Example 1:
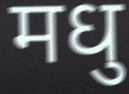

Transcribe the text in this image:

मधु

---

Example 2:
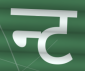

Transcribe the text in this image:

न्ट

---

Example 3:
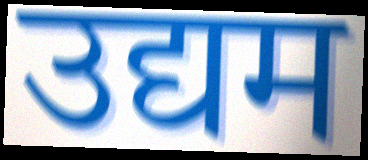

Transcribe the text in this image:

उद्यम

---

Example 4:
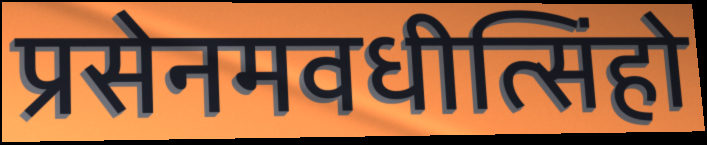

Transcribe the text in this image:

प्रसेनमवधीत्सिंहो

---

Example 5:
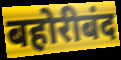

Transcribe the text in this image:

बहोरीबंद